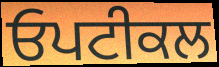
ਓਪਟੀਕਲ